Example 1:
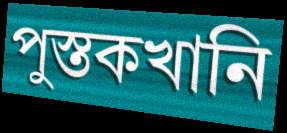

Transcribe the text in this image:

পুস্তকখানি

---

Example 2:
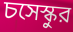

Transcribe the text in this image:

চসেস্কুর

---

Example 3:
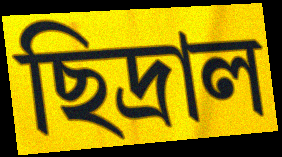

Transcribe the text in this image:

ছিদ্রাল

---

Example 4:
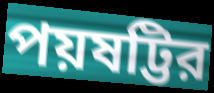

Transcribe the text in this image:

পয়ষট্টির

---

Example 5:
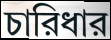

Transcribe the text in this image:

চারিধার